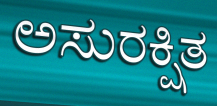
ಅಸುರಕ್ಷಿತ